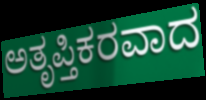
ಅತೃಪ್ತಿಕರವಾದ